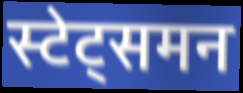
स्टेट्समन